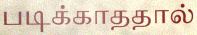
படிக்காததால்